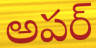
అపర్